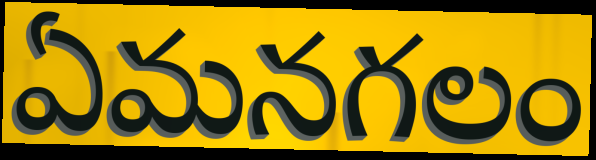
ఏమనగలం